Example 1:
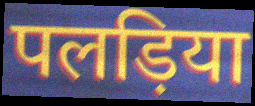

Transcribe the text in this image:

पलड़िया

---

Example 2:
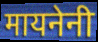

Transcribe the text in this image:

मायनेनी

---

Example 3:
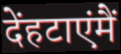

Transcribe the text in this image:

देंहटाएंमैं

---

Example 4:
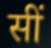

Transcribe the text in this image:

सीं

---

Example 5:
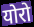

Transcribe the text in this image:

योरो